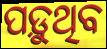
ପଡ଼ୁଥିବ